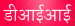
डीआईआई